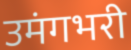
उमंगभरी